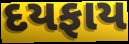
દયફાય